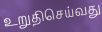
உறுதிசெய்வது